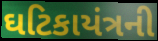
ઘટિકાયંત્રની